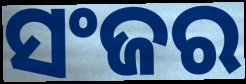
ସଂଜର